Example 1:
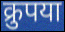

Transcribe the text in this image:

क्रुपया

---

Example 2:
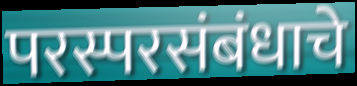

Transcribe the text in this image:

परस्परसंबंधाचे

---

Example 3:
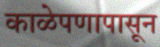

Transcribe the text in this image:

काळेपणापासून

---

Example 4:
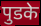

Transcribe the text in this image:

पुडके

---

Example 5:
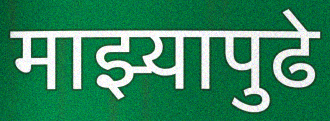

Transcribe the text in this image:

माझ्यापुढे